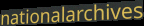
nationalarchives